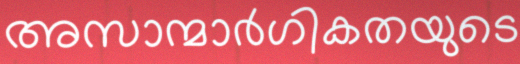
അസാന്മാർഗികതയുടെ